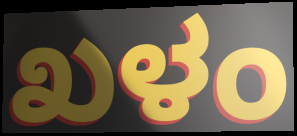
ಖಳಂ